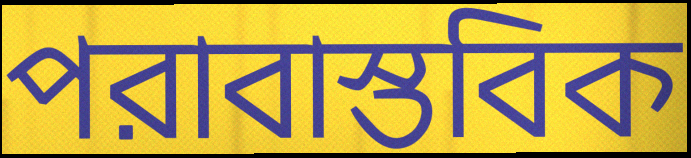
পরাবাস্তবিক